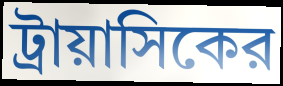
ট্রায়াসিকের